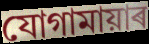
যোগামায়াৰ